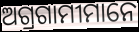
ଅଗ୍ରଗାମୀମାନେ